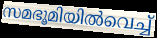
സമഭൂമിയിൽവെച്ച്